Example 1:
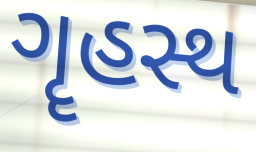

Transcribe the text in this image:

ગૄહસ્થ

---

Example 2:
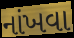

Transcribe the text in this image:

નાંખવા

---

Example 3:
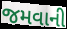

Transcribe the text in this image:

જમવાની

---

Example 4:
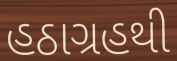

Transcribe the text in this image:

હઠાગ્રહથી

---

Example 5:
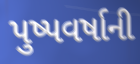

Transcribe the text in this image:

પુષ્પવર્ષાની